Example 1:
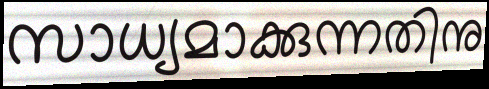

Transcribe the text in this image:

സാധ്യമാക്കുന്നതിനു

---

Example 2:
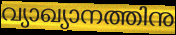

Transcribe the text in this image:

വ്യാഖ്യാനത്തിനു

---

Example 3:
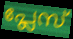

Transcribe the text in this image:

പ്ലേസ്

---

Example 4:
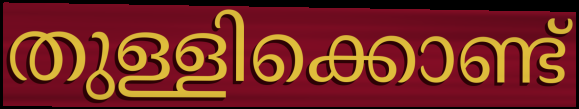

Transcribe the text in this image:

തുള്ളിക്കൊണ്ട്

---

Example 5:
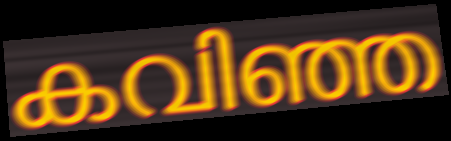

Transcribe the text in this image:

കവിഞ്ഞ